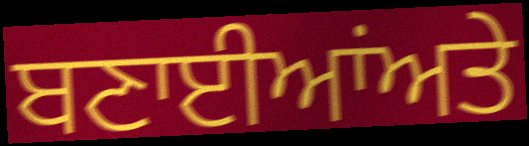
ਬਣਾਈਆਂਅਤੇ